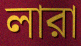
লারা